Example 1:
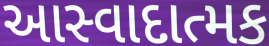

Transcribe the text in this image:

આસ્વાદાત્મક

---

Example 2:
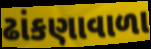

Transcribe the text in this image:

ઢાંકણાવાળા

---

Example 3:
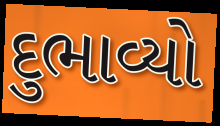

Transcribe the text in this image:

દુભાવ્યો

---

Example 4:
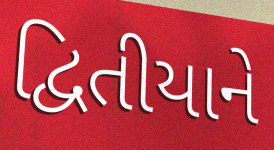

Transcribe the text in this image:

દ્વિતીયાને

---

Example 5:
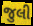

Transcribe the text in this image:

જુલી